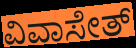
ವಿವಾಸೇತ್